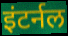
इंटर्नल